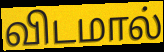
விடமால்